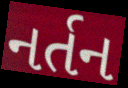
નર્તન